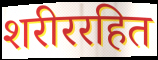
शरीररहित